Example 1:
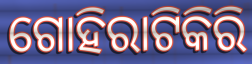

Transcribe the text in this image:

ଗୋହିରାଟିକିରି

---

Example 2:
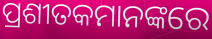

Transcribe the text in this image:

ପ୍ରଶୀତକମାନଙ୍କରେ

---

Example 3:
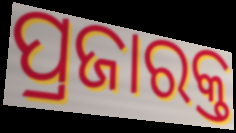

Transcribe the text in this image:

ପ୍ରଜାରକ୍ତ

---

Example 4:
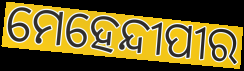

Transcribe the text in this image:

ମେହେନ୍ଦୀପୀର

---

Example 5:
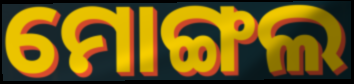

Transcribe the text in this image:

ମୋଙ୍ଗଲ